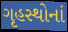
ગૃહસ્થોનાં